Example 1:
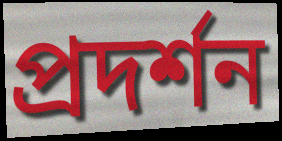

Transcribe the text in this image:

প্ৰদৰ্শন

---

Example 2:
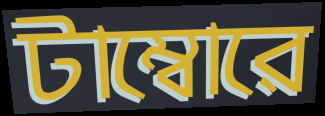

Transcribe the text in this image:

টাম্বোৱে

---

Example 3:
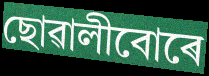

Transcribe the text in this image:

ছোৱালীবোৰে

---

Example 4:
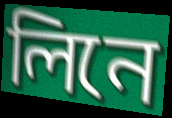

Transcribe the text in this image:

লিনে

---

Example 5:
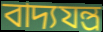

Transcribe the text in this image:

বাদ্যযন্ত্ৰ